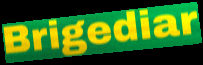
Brigediar